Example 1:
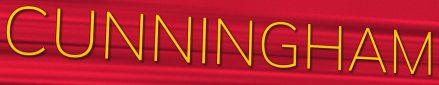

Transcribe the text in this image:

CUNNINGHAM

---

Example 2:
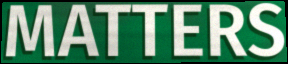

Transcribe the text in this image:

MATTERS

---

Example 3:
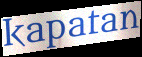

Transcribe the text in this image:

kapatan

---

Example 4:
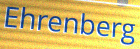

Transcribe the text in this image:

Ehrenberg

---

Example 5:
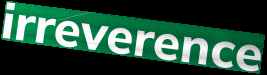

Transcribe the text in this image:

irreverence